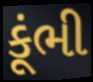
કૂંભી